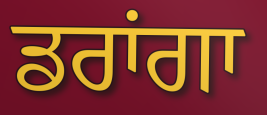
ਡਰਾਂਗਾ